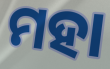
ମହା